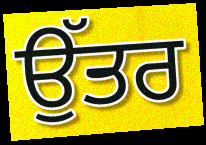
ਉੱਤਰ